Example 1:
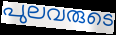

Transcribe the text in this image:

പുലവരുടെ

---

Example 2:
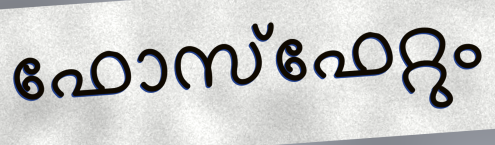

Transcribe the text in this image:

ഫോസ്ഫേറ്റും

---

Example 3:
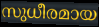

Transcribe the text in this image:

സുധീരമായ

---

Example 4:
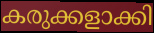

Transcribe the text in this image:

കരുക്കളാക്കി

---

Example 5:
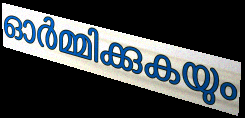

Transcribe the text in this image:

ഓർമ്മിക്കുകയും